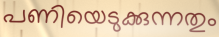
പണിയെടുക്കുന്നതും